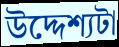
উদ্দেশ্যটা